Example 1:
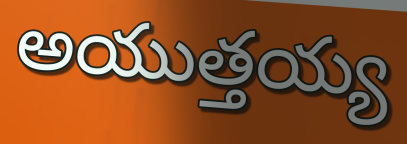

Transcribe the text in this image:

అయుత్తయ్య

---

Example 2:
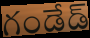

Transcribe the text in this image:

గండేడ్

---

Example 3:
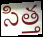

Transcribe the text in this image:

సిత్త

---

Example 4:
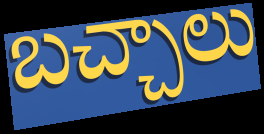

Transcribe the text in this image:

బచ్చాలు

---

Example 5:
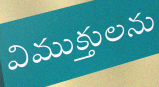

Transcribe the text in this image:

విముక్తులను